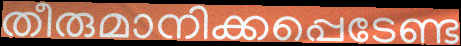
തീരുമാനിക്കപ്പെടേണ്ട